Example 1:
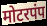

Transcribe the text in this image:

मोटरपंप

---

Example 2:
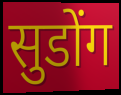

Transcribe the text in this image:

सुडोंग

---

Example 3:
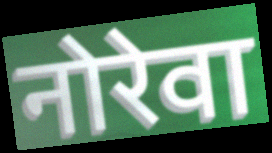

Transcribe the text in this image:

नोरेवा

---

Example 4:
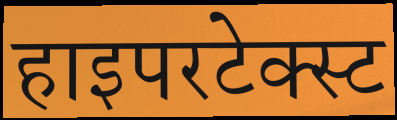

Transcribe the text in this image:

हाइपरटेक्स्ट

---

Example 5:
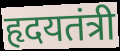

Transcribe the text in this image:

हृदयतंत्री